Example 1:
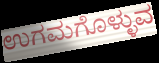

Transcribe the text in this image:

ಉಗಮಗೊಳ್ಳುವ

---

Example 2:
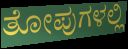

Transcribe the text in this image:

ತೋಪುಗಳಲ್ಲಿ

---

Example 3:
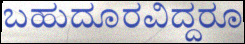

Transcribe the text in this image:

ಬಹುದೂರವಿದ್ದರೂ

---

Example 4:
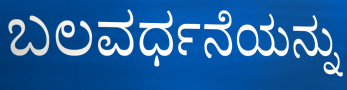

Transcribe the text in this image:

ಬಲವರ್ಧನೆಯನ್ನು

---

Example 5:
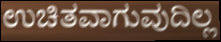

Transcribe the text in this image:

ಉಚಿತವಾಗುವುದಿಲ್ಲ